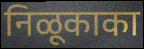
निळूकाका